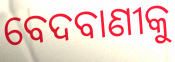
ବେଦବାଣୀକୁ